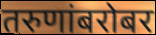
तरुणांबरोबर